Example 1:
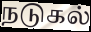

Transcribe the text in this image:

நடுகல்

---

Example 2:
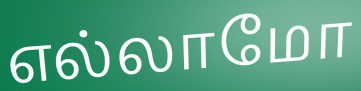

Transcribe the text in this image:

எல்லாமோ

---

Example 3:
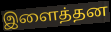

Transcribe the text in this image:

இளைத்தன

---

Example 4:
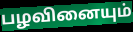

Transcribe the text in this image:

பழவினையும்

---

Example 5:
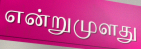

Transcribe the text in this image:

என்றுமுளது